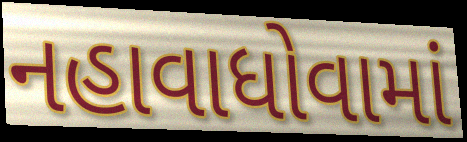
નહાવાધોવામાં